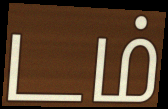
டம்